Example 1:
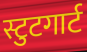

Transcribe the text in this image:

स्टुटगार्ट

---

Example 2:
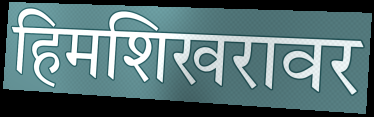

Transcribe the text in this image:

हिमशिखरावर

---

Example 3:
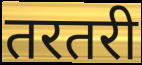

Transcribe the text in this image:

तरतरी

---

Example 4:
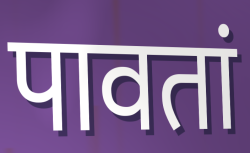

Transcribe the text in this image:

पावतां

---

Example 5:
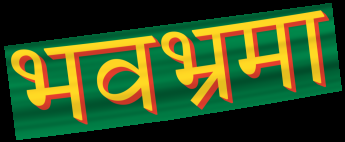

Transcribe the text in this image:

भवभ्रमा